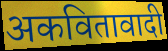
अकवितावादी